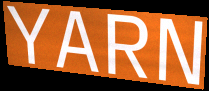
YARN